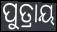
ପୁତ୍ରାୟ